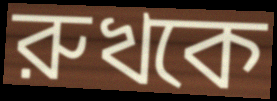
রুখকে